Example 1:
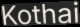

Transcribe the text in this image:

Kothai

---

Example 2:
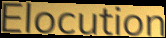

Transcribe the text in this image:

Elocution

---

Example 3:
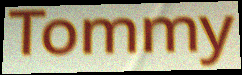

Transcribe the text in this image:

Tommy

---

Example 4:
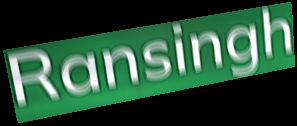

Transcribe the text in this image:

Ransingh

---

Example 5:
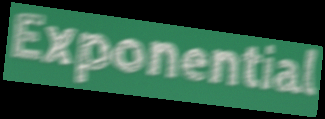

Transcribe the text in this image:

Exponential